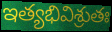
ఇత్యభివిశ్రుతః